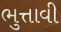
ભુત્તાવી